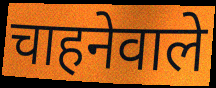
चाहनेवाले